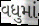
વધુમાં